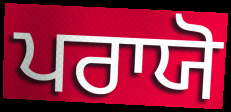
ਪਰਾਯੋ